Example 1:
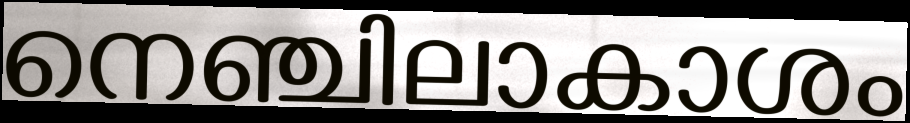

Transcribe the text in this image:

നെഞ്ചിലാകാശം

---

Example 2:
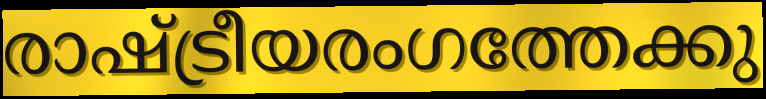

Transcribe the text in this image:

രാഷ്ട്രീയരംഗത്തേക്കു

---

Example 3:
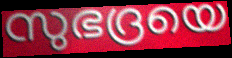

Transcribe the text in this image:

സുഭദ്രയെ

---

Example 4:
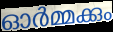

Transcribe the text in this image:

ഓർമ്മക്കും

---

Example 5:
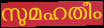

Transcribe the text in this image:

സുമഹതീം